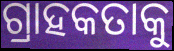
ଗ୍ରାହକତାକୁ